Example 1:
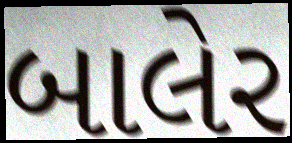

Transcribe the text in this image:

બાલેર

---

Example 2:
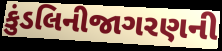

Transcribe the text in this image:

કુંડલિનીજાગરણની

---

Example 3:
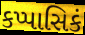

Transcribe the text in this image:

કપ્પાસિકં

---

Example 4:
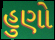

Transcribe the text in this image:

હુણો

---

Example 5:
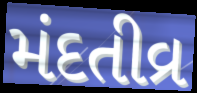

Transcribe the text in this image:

મંદતીવ્ર